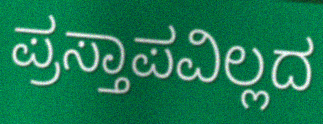
ಪ್ರಸ್ತಾಪವಿಲ್ಲದ